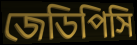
জেডিপিসি